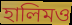
হালিমও